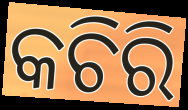
କଚିରି